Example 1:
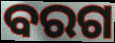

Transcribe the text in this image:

ବରଗ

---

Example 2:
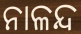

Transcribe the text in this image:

ନାଳନ୍ଦ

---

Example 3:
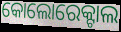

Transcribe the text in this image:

କୋଲୋରେକ୍ଟାଲ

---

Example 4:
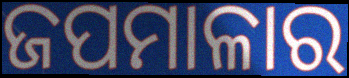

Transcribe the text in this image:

ଜପମାଳାର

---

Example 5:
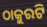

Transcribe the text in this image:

ଠାକୁରଟି